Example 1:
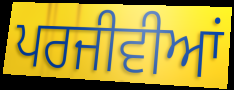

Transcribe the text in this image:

ਪਰਜੀਵੀਆਂ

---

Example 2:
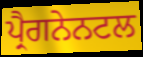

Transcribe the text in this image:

ਪ੍ਰੈਗਨੇਨਟਲ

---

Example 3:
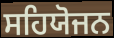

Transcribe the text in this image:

ਸਹਿਯੋਜਨ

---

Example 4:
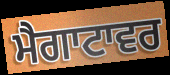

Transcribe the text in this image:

ਮੈਗਾਟਾਵਰ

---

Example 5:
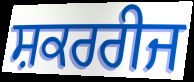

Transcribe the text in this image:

ਸ਼ਕਰਰੀਜ